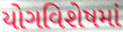
યોગવિશેષમાં